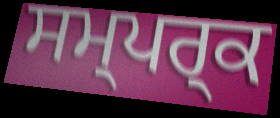
ਸਮ੍ਪਰ੍ਕ